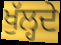
ਖੁੱਲ੍ਹਦੇ